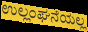
ಉಲ್ಲಂಘನೆಯಲ್ಲ